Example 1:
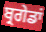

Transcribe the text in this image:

ਬ੍ਰਗੇਡਾਂ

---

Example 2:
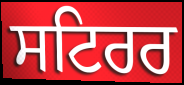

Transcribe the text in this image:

ਸਟਿਰਰ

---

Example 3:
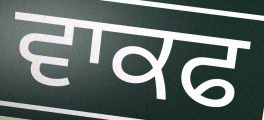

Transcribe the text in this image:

ਵਾਕਫ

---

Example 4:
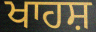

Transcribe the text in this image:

ਖਾਹਸ਼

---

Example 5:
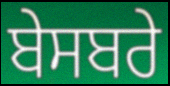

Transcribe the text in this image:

ਬੇਸਬਰੇ